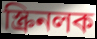
স্ক্রিনলক